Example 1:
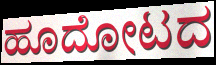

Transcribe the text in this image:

ಹೂದೋಟದ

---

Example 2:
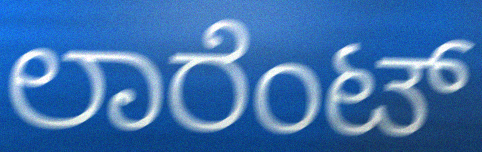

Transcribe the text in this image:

ಲಾರೆಂಟ್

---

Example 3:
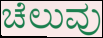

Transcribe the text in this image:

ಚೆಲುವು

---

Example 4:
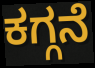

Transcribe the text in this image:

ಕಗ್ಗನೆ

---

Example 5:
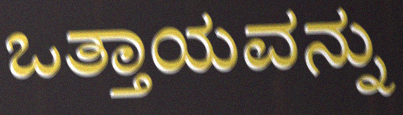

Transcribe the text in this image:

ಒತ್ತಾಯವನ್ನು